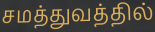
சமத்துவத்தில்